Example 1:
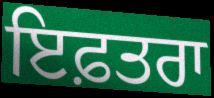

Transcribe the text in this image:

ਇਫ਼ਤਰਾ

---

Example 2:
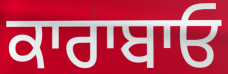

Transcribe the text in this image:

ਕਾਰਾਬਾਓ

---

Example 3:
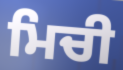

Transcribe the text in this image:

ਮਿਚੀ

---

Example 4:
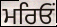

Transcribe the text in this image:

ਮਰਿਓਂ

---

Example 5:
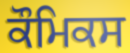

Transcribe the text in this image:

ਕੌਮਿਕਸ